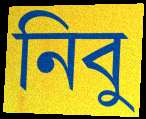
নিবু